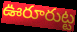
ఊరూరుట్ట